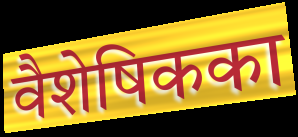
वैशेषिकका